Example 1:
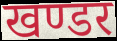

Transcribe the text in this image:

खण्डर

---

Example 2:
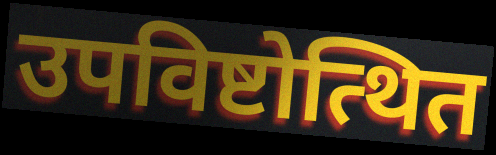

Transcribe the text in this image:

उपविष्टोत्थित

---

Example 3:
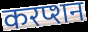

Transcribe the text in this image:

करप्शन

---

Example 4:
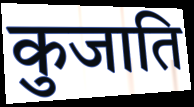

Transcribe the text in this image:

कुजाति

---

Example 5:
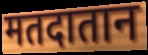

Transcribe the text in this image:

मतदातान